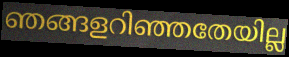
ഞങ്ങളറിഞ്ഞതേയില്ല